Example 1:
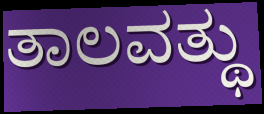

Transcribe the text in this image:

ತಾಲವತ್ಥು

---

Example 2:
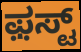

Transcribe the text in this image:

ಫ಼ಸ್ಟ್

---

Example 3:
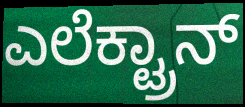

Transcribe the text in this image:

ಎಲೆಕ್ಟ್ರಾನ್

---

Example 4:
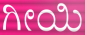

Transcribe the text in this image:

ಗೀಯಿ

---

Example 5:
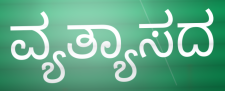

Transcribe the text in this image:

ವ್ಯತ್ಯಾಸದ